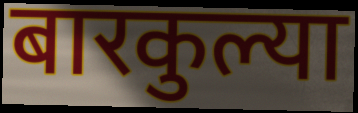
बारकुल्या